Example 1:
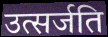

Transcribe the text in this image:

उत्सर्जति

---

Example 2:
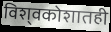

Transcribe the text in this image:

विश्वकोशातही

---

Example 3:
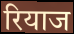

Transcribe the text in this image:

रियाज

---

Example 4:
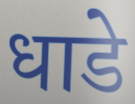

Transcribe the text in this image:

धाडे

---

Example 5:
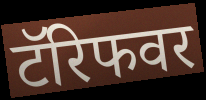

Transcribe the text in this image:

टॅरिफवर